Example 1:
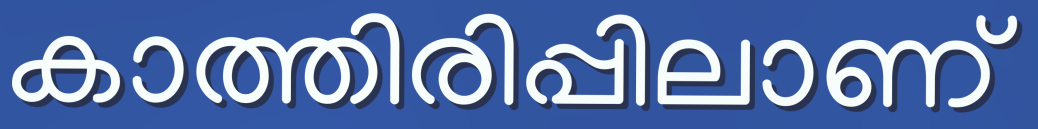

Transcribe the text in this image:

കാത്തിരിപ്പിലാണ്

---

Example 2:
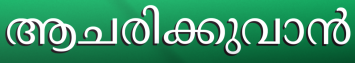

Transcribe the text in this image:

ആചരിക്കുവാൻ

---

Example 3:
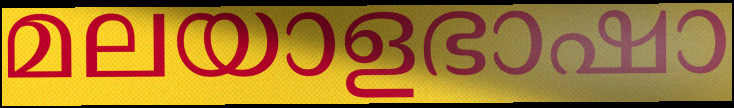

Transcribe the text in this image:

മലയാളഭാഷാ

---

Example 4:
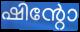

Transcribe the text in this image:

ഷിന്റോ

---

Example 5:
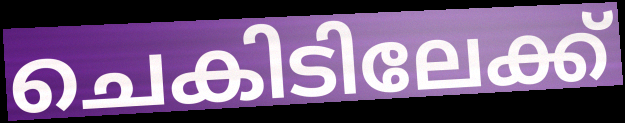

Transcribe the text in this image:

ചെകിടിലേക്ക്